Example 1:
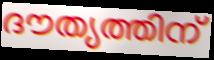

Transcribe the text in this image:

ദൗത്യത്തിന്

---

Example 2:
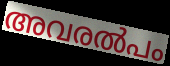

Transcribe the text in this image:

അവരൽപം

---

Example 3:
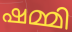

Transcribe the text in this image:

ഷമ്മി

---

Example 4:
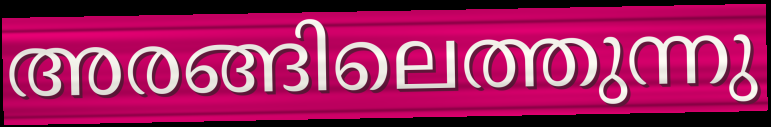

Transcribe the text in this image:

അരങ്ങിലെത്തുന്നു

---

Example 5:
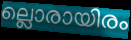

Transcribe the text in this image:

ല്ലൊരായിരം